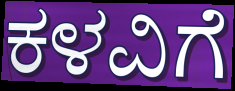
ಕಳವಿಗೆ